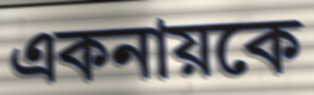
একনায়কে